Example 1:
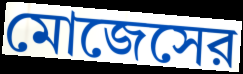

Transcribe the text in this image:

মোজেসের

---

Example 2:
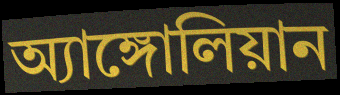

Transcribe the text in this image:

অ্যাঙ্গোলিয়ান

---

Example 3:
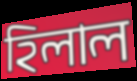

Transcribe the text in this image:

হিলাল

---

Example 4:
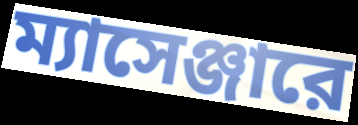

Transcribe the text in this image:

ম্যাসেঞ্জারে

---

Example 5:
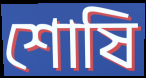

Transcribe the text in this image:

শোষি